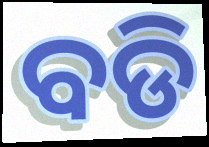
ବଡି